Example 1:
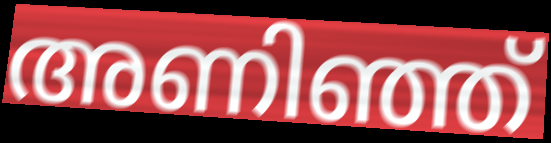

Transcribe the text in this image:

അണിഞ്ഞ്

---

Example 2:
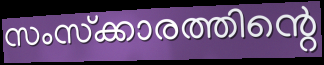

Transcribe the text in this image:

സംസ്‌ക്കാരത്തിന്റെ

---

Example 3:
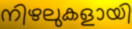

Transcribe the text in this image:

നിഴലുകളായി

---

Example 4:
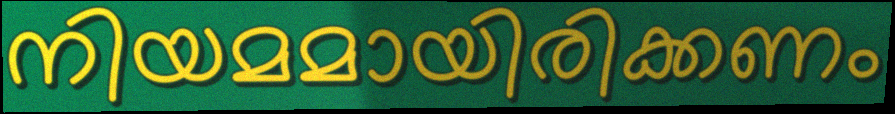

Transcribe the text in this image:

നിയമമായിരിക്കണം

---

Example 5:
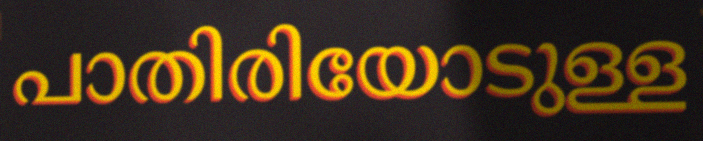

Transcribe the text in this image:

പാതിരിയോടുള്ള